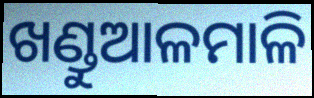
ଖଣ୍ଡୁଆଳମାଳି